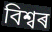
বিশ্বৰ